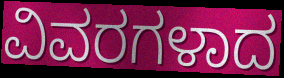
ವಿವರಗಳಾದ